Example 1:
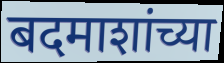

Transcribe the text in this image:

बदमाशांच्या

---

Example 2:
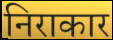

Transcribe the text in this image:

निराकार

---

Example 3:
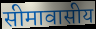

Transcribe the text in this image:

सीमावासीय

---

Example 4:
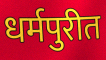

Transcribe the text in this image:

धर्मपुरीत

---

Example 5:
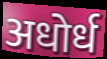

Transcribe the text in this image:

अधोर्ध